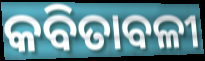
କବିତାବଳୀ